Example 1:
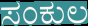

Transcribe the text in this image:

ಸಂಕುಲ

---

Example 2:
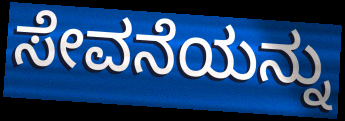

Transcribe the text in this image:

ಸೇವನೆಯನ್ನು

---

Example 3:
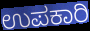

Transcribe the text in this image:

ಉಪಕಾರಿ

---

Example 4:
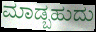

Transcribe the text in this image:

ಮಾಡ್ಬಹುದು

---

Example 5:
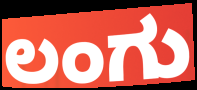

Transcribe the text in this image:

ಲಂಗು